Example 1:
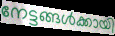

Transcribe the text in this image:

നേട്ടങ്ങൾക്കായി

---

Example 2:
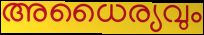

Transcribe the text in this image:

അധൈര്യവും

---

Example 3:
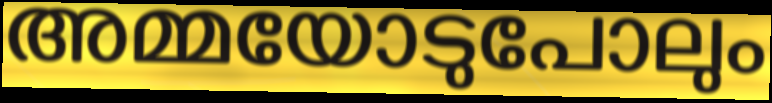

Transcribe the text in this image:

അമ്മയോടുപോലും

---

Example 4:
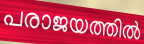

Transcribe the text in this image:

പരാജയത്തിൽ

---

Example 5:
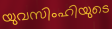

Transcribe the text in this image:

യുവസിംഹിയുടെ